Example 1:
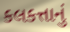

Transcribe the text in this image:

કલકત્તાનું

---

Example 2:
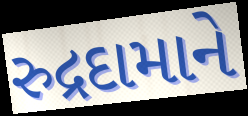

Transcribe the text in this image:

રુદ્રદામાને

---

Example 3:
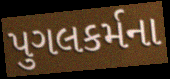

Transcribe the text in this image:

પુગલકર્મના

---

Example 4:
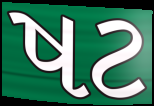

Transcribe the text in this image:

ષટ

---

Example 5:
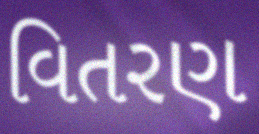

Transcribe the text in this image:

વિતરણ